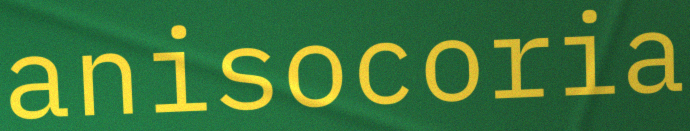
anisocoria